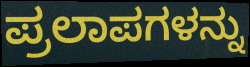
ಪ್ರಲಾಪಗಳನ್ನು